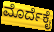
ಮೊರ್ದೆಕೈ